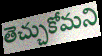
తెచ్చుకోమని